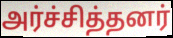
அர்ச்சித்தனர்